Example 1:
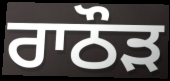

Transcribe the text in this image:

ਰਾਠੌੜ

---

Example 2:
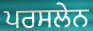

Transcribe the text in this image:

ਪਰਸਲੇਨ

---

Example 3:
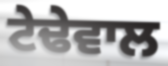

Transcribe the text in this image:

ਟੇਢੇਵਾਲ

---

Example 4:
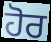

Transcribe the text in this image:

ਹੋਰ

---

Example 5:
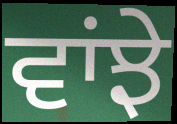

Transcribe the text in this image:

ਵਾਂਝੇ